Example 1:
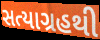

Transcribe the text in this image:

સત્યાગ્રહથી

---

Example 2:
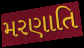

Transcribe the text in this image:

મરણાતિ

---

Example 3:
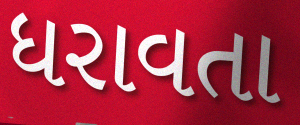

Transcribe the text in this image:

ધરાવતા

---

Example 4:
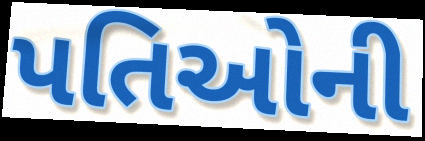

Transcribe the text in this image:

પતિઓની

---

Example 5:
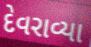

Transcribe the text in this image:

દેવરાવ્યા